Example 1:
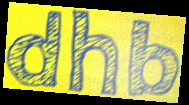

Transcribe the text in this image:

dhb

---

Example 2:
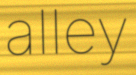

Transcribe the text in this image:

alley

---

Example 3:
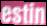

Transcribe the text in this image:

estin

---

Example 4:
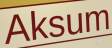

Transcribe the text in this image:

Aksum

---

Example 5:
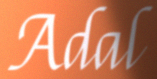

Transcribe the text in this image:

Adal